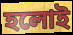
হলোই